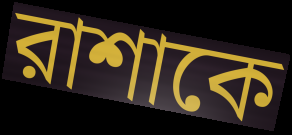
রাশাকে